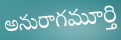
అనురాగమూర్తి